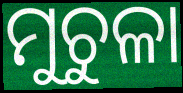
ମୁଚୁଳା